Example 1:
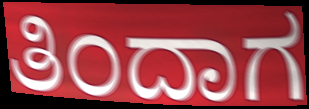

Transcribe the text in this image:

ತಿಂದಾಗ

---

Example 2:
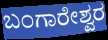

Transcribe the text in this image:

ಬಂಗಾರೇಶ್ವರ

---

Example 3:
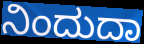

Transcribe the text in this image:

ನಿಂದುದಾ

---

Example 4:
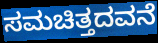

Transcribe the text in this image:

ಸಮಚಿತ್ತದವನೆ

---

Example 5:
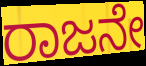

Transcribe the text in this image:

ರಾಜನೇ